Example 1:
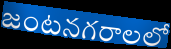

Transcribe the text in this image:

జంటనగరాలలో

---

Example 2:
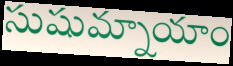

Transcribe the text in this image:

సుషుమ్నాయాం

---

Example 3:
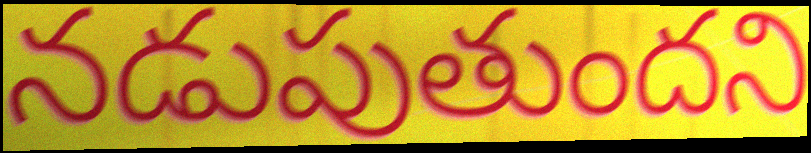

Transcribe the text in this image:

నడుపుతుందని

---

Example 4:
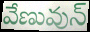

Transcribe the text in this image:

వేణువున్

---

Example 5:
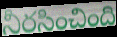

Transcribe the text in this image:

నీరసించింది